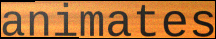
animates